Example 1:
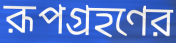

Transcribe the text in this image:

রূপগ্রহণের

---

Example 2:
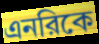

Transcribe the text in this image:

এনরিকে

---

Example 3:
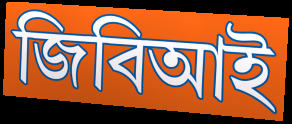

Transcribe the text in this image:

জিবিআই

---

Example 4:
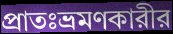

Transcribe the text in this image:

প্রাতঃভ্রমণকারীর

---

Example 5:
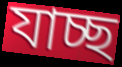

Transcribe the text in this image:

যাচ্ছ